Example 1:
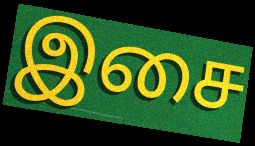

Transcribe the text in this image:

இசை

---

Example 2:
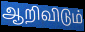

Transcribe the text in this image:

ஆறிவிடும்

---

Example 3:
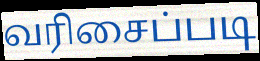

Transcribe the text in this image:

வரிசைப்படி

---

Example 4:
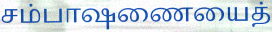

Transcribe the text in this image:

சம்பாஷணையைத்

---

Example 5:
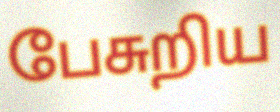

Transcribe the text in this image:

பேசுறிய